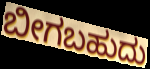
ಬೀಗಬಹುದು